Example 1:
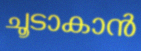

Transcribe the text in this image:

ചൂടാകാൻ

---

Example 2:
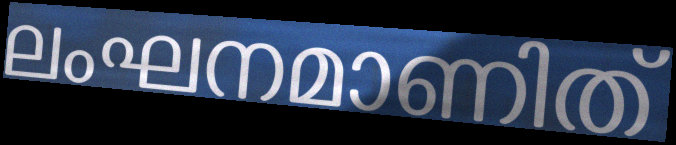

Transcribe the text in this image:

ലംഘനമാണിത്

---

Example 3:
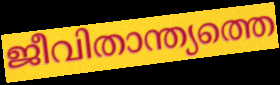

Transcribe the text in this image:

ജീവിതാന്ത്യത്തെ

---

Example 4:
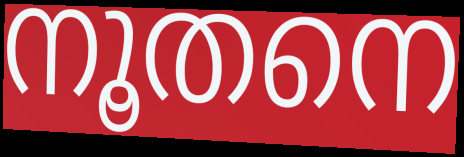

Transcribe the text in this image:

നൂതനെ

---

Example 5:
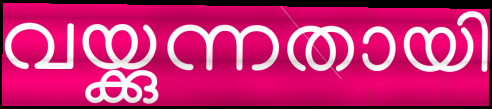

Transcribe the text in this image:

വയ്ക്കുന്നതായി